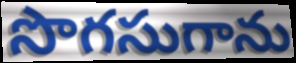
సొగసుగాను